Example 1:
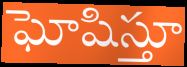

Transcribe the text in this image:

ఘోషిస్తూ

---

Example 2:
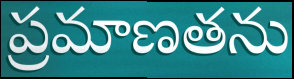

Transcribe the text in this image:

ప్రమాణతను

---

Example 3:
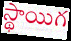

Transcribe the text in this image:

స్థాయిగ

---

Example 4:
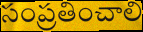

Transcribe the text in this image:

సంప్రతించాలి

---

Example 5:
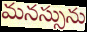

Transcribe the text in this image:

మనస్సును